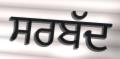
ਸਰਬੱਦ